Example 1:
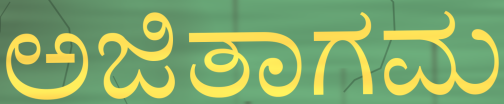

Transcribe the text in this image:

ಅಜಿತಾಗಮ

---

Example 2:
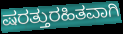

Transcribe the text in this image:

ಷರತ್ತುರಹಿತವಾಗಿ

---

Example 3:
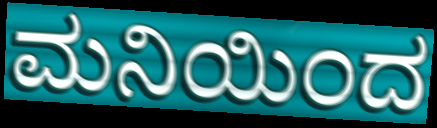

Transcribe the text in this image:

ಮನಿಯಿಂದ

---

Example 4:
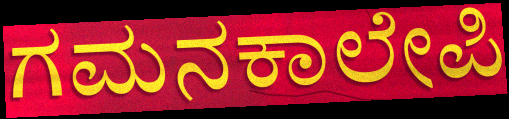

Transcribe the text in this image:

ಗಮನಕಾಲೇಪಿ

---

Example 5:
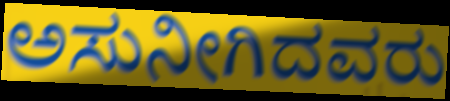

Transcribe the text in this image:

ಅಸುನೀಗಿದವರು